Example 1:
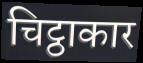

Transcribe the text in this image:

चिट्ठाकार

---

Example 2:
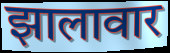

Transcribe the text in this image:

झालावार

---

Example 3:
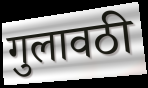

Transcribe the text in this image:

गुलावठी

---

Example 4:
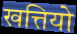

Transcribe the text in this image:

खत्तियो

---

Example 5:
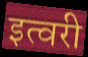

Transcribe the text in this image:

इत्वरी